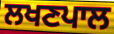
ਲਖਣਪਾਲ